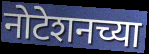
नोटेशनच्या